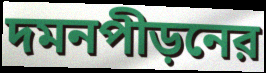
দমনপীড়নের